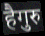
हैगुरु